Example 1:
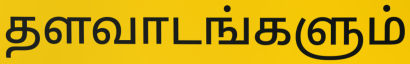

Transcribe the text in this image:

தளவாடங்களும்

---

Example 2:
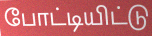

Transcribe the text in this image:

போட்டியிட்டு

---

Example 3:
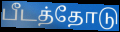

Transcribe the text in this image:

பீடத்தோடு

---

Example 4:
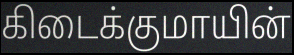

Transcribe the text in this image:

கிடைக்குமாயின்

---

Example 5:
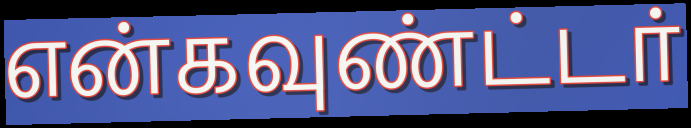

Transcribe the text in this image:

என்கவுண்ட்டர்